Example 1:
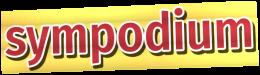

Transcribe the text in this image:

sympodium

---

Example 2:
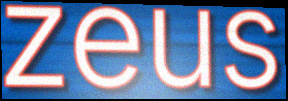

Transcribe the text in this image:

zeus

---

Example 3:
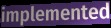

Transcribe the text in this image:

implemented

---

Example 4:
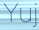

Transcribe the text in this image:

Yuj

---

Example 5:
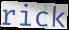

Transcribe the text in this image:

rick